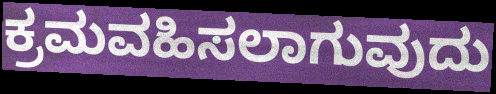
ಕ್ರಮವಹಿಸಲಾಗುವುದು